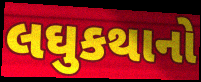
લઘુકથાનો